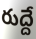
రుద్దే